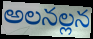
అలనల్లన